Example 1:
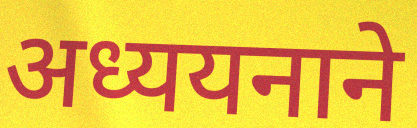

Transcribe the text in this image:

अध्ययनाने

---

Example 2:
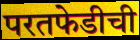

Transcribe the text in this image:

परतफेडीची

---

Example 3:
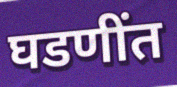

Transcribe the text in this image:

घडणींत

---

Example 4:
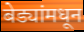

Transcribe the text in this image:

बेड्यांमधून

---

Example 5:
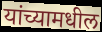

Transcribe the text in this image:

यांच्यामधील